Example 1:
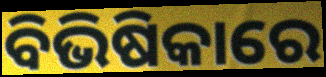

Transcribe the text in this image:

ବିଭିଷିକାରେ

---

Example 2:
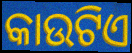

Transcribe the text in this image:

କାଉଟିଏ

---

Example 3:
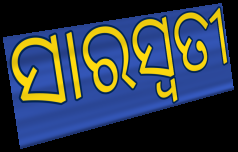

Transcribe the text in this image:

ସାରସ୍ୱତୀ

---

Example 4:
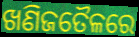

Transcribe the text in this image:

ଖଣିଜତୈଳରେ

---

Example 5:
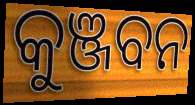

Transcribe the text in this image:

କୁଞ୍ଜବନ